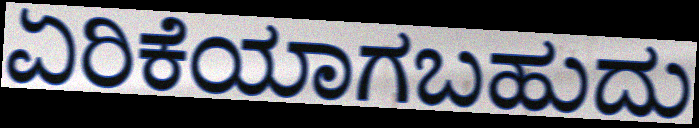
ಏರಿಕೆಯಾಗಬಹುದು